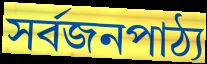
সর্বজনপাঠ্য